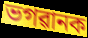
ভগৱানক